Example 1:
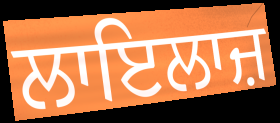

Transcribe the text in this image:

ਲਾਇਲਾਜ਼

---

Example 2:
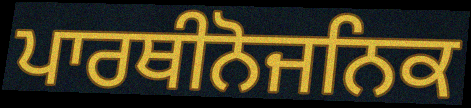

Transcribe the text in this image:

ਪਾਰਥੀਨੋਜਨਿਕ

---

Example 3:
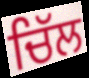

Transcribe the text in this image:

ਚਿੱਲ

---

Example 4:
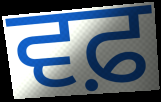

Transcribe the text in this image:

ਵਫ਼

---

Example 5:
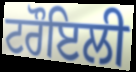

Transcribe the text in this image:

ਟਰੌਇਲੀ